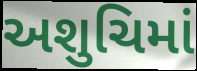
અશુચિમાં